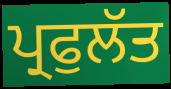
ਪ੍ਰਫੁਲੱਤ